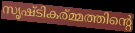
സൃഷ്ടികര്മ്മത്തിന്റെ